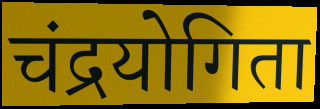
चंद्रयोगिता